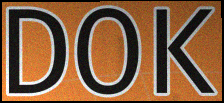
DOK